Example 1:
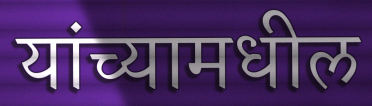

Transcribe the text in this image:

यांच्यामधील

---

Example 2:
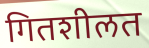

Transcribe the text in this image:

गितशीलत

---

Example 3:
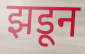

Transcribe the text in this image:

झडून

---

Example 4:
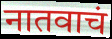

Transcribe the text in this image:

नातवाचं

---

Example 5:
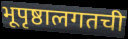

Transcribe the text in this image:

भूपृष्ठालगतची